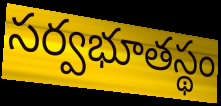
సర్వభూతస్థం